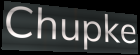
Chupke